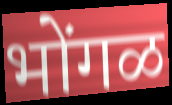
भोंगळ